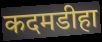
कदमडीहा